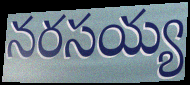
నరసయ్య